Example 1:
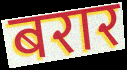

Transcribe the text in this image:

बरार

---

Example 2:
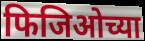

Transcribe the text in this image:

फिजिओच्या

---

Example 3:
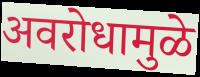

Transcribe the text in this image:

अवरोधामुळे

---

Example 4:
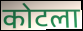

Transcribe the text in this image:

कोटला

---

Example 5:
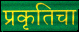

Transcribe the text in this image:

प्रकृतिचा